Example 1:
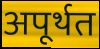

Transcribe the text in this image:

अपूर्थत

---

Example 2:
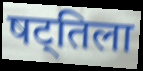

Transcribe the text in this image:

षट्तिला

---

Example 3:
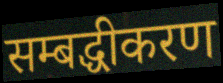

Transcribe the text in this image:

सम्बद्धीकरण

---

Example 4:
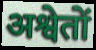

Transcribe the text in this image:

अश्वेतों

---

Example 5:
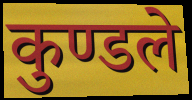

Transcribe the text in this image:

कुण्डले